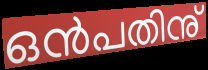
ഒൻപതിനു്